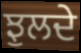
ਝੁਲਦੇ